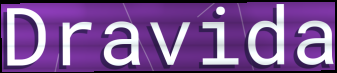
Dravida